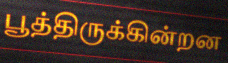
பூத்திருக்கின்றன